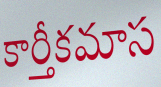
కార్తీకమాస